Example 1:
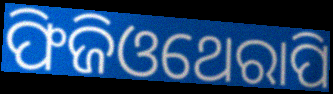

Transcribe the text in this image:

ଫିଜିଓଥେରାପି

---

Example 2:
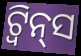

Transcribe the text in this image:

ଟ୍ବିନ୍‌ସ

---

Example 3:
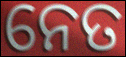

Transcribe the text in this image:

ନେତ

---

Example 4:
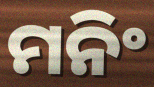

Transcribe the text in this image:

ମନିଂ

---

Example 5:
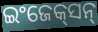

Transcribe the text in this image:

ଇଂଜେକ୍‌ସନ୍